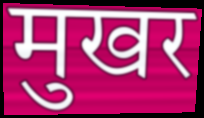
मुखर